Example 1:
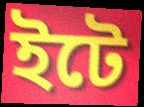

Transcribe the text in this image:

ইটে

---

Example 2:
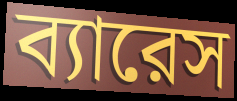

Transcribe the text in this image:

ব্যারেস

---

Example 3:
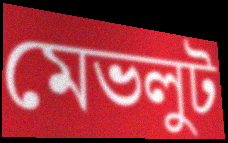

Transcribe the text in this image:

মেভলুট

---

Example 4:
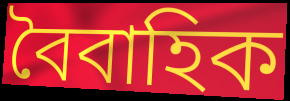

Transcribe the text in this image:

বৈবাহিক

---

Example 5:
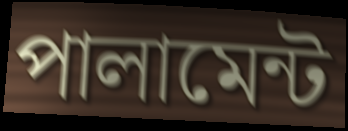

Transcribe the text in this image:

পালামেন্ট